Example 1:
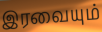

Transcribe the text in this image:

இரவையும்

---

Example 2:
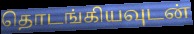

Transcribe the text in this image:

தொடங்கியவுடன்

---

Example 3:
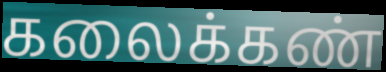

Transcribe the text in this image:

கலைக்கண்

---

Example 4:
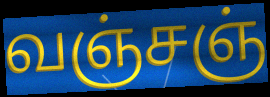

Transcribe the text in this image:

வஞ்சஞ்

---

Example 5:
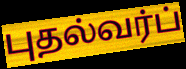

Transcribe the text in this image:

புதல்வர்ப்